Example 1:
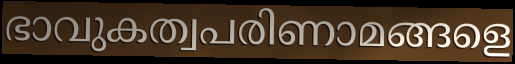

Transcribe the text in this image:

ഭാവുകത്വപരിണാമങ്ങളെ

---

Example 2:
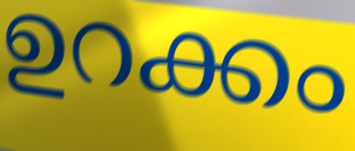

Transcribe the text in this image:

ഉറക്കം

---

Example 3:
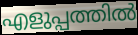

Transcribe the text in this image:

എളുപ്പത്തിൽ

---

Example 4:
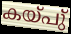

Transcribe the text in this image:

കയ്പു്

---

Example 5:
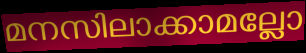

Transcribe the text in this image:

മനസിലാക്കാമല്ലോ